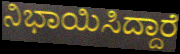
ನಿಭಾಯಿಸಿದ್ದಾರೆ